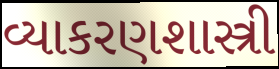
વ્યાકરણશાસ્ત્રી